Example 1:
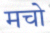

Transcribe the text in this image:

मचो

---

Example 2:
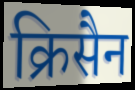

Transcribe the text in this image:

क्रिसैन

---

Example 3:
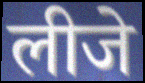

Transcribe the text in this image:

लीजे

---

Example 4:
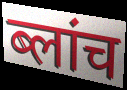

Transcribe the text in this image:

ब्लांच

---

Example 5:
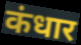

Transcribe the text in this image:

कंधार